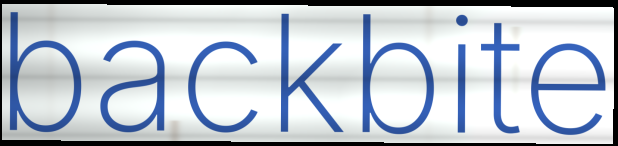
backbite